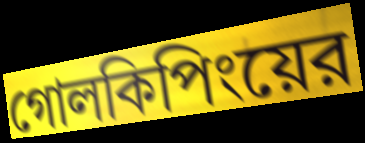
গোলকিপিংয়ের